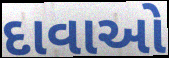
દાવાઓ